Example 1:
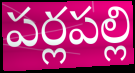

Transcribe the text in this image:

పర్లపల్లి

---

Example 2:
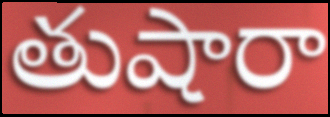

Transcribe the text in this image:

తుషారా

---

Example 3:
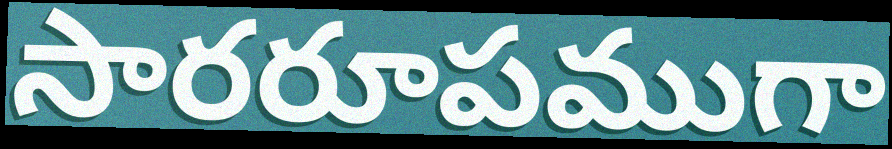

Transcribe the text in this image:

సారరూపముగా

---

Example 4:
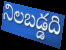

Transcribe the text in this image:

నిలబడ్డది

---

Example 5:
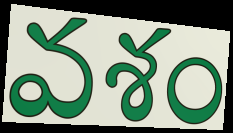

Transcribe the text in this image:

వశం